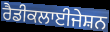
ਰੈਡੀਕਲਾਈਜੇਸ਼ਨ